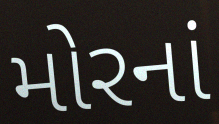
મોરનાં